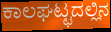
ಕಾಲಘಟ್ಟದಲ್ಲಿನ